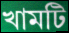
খামটি